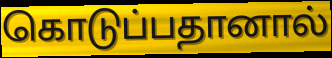
கொடுப்பதானால்